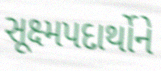
સૂક્ષ્મપદાર્થોને